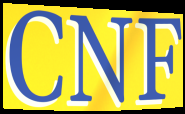
CNF